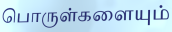
பொருள்களையும்